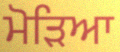
ਮੋੜਿਆ